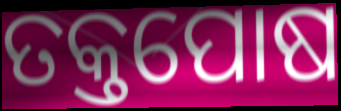
ତକ୍ତପୋଷ